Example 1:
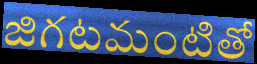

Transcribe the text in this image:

జిగటమంటితో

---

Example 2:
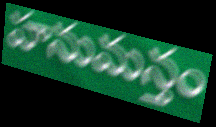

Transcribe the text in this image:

హనుమన్తం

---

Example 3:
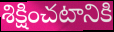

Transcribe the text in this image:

శిక్షించటానికి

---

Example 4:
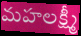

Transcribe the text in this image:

మహలక్ష్మీ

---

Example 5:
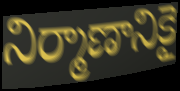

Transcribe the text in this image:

నిర్మాణానికై